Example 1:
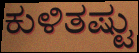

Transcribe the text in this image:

ಕುಳಿತಷ್ಟು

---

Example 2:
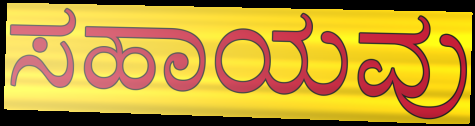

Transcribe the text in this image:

ಸಹಾಯವು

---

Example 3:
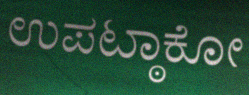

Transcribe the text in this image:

ಉಪಟ್ಠಾಕೋ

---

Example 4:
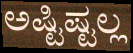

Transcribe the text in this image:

ಅಷ್ಟಿಷ್ಟಲ್ಲ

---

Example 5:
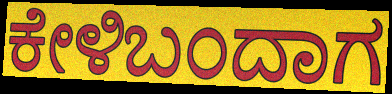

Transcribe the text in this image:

ಕೇಳಿಬಂದಾಗ